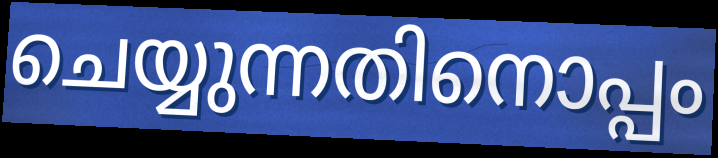
ചെയ്യുന്നതിനൊപ്പം